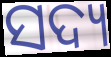
ସଦ୍ଯ